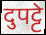
दुपट्टे